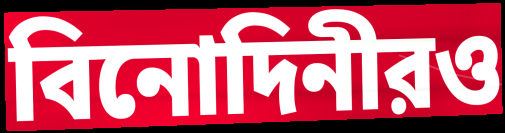
বিনোদিনীরও